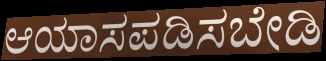
ಆಯಾಸಪಡಿಸಬೇಡಿ